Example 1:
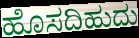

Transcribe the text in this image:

ಹೊಸದಿಹುದು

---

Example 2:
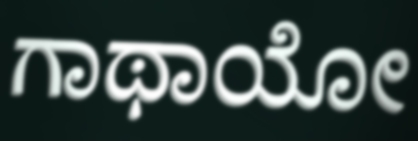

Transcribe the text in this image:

ಗಾಥಾಯೋ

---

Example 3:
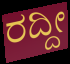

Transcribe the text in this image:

ರದ್ದೀ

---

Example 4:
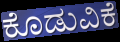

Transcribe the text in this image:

ಕೊಡುವಿಕೆ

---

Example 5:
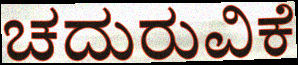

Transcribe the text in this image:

ಚದುರುವಿಕೆ